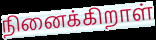
நினைக்கிறாள்